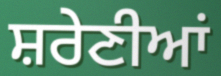
ਸ਼ਰੇਣੀਆਂ